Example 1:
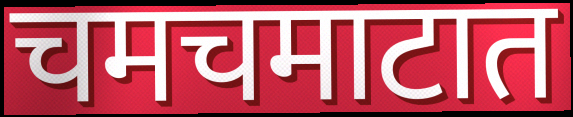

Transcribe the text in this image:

चमचमाटात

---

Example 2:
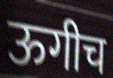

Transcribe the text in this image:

ऊगीच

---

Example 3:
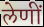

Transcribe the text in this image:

लेणीं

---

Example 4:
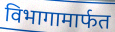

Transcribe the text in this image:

विभागामार्फत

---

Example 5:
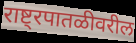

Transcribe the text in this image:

राष्ट्रपातळीवरील